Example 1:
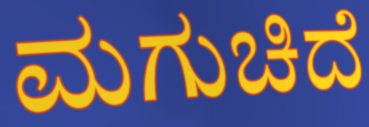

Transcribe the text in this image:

ಮಗುಚಿದೆ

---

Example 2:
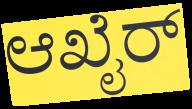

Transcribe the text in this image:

ಆಖೈರ್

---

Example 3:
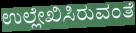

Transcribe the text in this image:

ಉಲ್ಲೇಖಿಸಿರುವಂತೆ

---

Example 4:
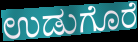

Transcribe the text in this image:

ಉಡುಗೊರೆ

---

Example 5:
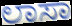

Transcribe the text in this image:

ಲಾಸಾ